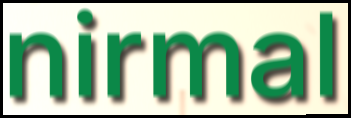
nirmal